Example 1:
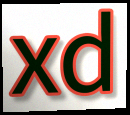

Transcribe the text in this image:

xd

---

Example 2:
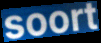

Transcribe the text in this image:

soort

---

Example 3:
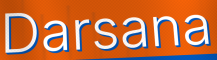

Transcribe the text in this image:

Darsana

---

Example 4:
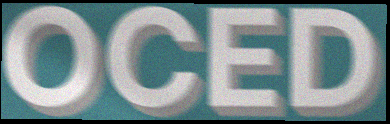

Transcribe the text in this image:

OCED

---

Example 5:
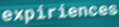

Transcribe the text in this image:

expiriences